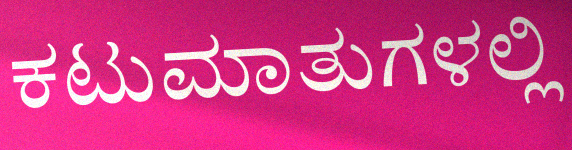
ಕಟುಮಾತುಗಳಲ್ಲಿ